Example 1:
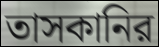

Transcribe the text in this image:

তাসকানির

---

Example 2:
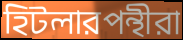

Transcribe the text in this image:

হিটলারপন্থীরা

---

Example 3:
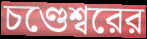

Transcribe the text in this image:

চণ্ডেশ্বরের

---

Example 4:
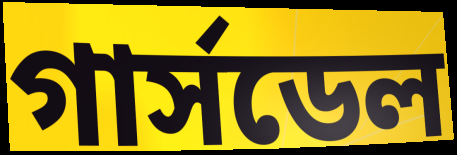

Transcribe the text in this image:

গার্সডেল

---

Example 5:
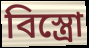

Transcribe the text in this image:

বিস্ত্রো